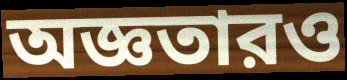
অজ্ঞতারও